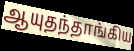
ஆயுதந்தாங்கிய